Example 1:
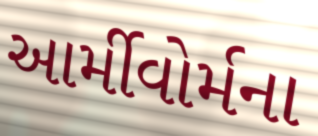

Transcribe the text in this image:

આર્મીવોર્મના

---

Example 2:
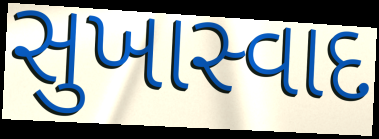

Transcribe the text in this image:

સુખાસ્વાદ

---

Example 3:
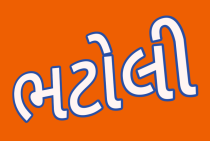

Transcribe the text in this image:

ભટોલી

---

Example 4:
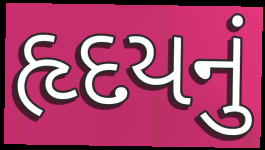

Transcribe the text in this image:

હૃદયનું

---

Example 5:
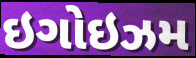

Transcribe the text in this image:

ઇગોઇઝમ